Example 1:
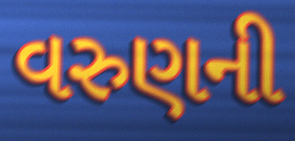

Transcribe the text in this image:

વરુણની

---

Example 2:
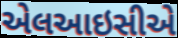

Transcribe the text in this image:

એલઆઇસીએ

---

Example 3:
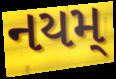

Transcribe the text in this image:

નયમ્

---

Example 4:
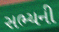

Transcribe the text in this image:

સભ્યની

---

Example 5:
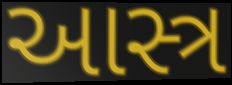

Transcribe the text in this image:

આસ્ત્ર